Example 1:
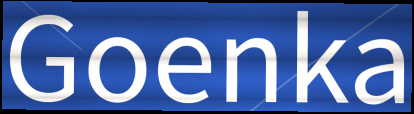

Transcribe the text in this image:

Goenka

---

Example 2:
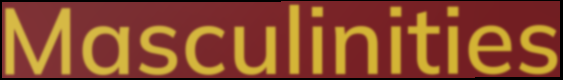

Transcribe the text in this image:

Masculinities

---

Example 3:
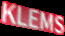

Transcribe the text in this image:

KLEMS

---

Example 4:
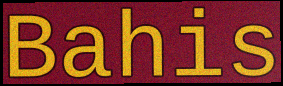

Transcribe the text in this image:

Bahis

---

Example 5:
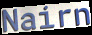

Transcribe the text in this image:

Nairn